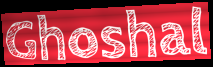
Ghoshal